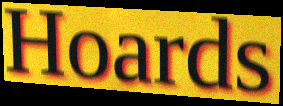
Hoards